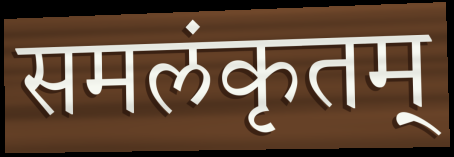
समलंकृतम्